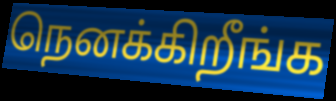
நெனக்கிறீங்க